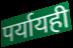
पर्यायही